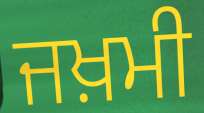
ਜਖ਼ਮੀ